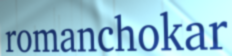
romanchokar